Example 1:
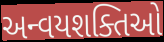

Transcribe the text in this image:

અન્વયશક્તિઓ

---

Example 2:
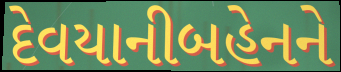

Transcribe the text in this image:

દેવયાનીબહેનને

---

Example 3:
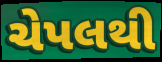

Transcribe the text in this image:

ચેપલથી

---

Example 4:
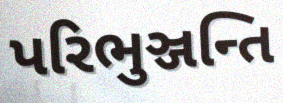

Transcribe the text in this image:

પરિભુઞ્જન્તિ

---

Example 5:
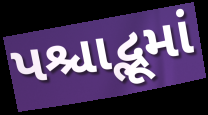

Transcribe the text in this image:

પશ્ચાદ્ભૂમાં